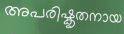
അപരിഷ്കൃതനായ